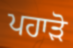
ਪਹਾੜੋ